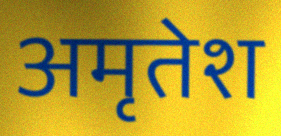
अमृतेश